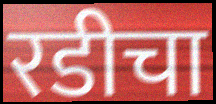
रडीचा